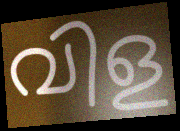
വിള